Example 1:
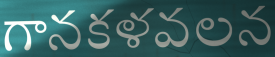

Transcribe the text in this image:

గానకళవలన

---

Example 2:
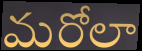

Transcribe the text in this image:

మరోలా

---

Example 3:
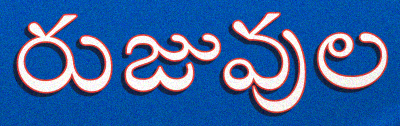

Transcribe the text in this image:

రుజువుల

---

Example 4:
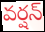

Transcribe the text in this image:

వర్షన్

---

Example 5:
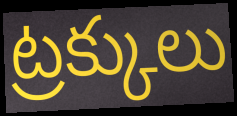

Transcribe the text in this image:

ట్రక్కులు